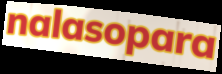
nalasopara